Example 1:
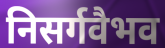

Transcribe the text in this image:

निसर्गवैभव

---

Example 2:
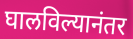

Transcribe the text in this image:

घालविल्यानंतर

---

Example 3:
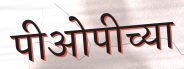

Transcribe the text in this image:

पीओपीच्या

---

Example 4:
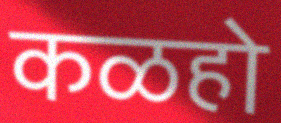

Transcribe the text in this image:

कळहो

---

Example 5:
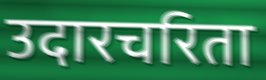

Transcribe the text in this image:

उदारचरिता